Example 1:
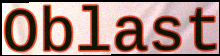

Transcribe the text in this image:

Oblast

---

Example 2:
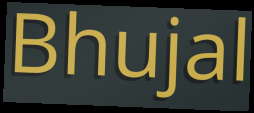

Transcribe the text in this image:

Bhujal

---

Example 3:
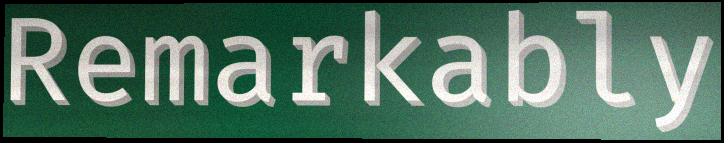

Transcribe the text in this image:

Remarkably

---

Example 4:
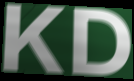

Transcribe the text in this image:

KD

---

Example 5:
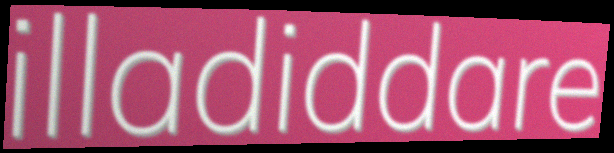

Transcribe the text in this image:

illadiddare